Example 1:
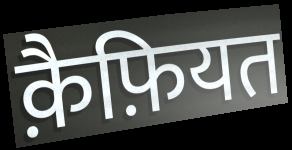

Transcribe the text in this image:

क़ैफ़ियत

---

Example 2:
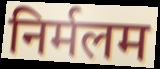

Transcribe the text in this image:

निर्मलम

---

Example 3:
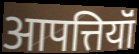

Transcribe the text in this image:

आपत्तियॉं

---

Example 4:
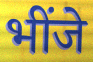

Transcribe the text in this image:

भींजे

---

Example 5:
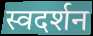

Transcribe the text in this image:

स्वदर्शन